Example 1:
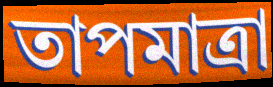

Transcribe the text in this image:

তাপমাত্রা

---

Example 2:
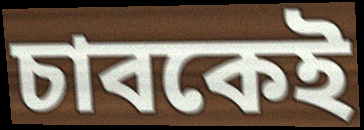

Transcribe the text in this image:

চাবকেই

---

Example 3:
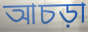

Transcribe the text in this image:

আচড়া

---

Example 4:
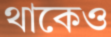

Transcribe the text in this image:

থাকেও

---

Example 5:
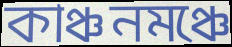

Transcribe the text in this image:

কাঞ্চনমঞ্চে